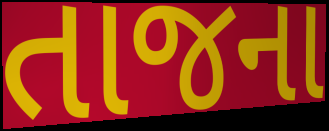
તાજના